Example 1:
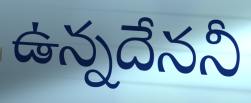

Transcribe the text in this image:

ఉన్నదేననీ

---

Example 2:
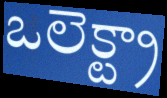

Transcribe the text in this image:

ఒలెక్ట్రా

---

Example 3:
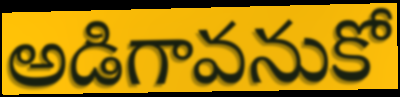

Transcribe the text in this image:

అడిగావనుకో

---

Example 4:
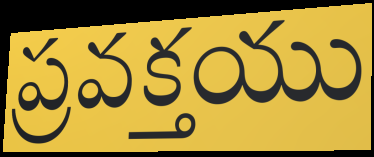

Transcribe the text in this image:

ప్రవక్తయు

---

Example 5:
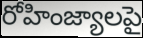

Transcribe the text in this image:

రోహింజ్యాలపై